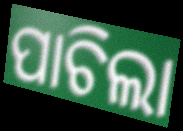
ପାଚିଲା